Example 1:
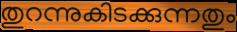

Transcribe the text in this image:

തുറന്നുകിടക്കുന്നതും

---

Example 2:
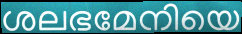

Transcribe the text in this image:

ശലഭമേനിയെ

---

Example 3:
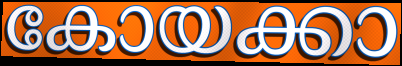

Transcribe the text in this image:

കോയക്കാ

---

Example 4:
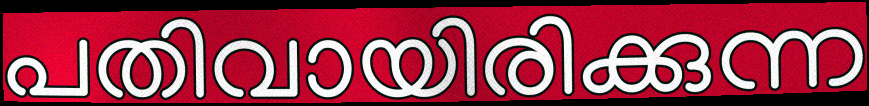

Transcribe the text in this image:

പതിവായിരിക്കുന്ന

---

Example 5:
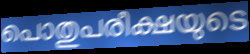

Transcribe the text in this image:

പൊതുപരീക്ഷയുടെ